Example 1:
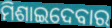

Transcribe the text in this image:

ମିଶାଇଦେବାର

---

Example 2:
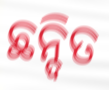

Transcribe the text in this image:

ଛନ୍ଦିତ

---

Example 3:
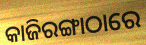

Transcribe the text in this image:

କାଜିରଙ୍ଗାଠାରେ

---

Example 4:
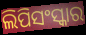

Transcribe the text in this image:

ଲିପିସଂସ୍କାର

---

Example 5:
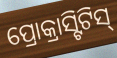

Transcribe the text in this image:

ପ୍ରୋକ୍ରାସ୍ଟିଟିସ୍